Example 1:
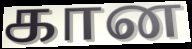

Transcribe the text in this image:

கான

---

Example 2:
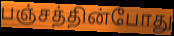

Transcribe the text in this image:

பஞ்சத்தின்போது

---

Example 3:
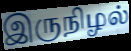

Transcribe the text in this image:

இருநிழல்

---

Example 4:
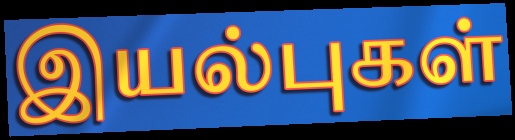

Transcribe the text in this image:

இயல்புகள்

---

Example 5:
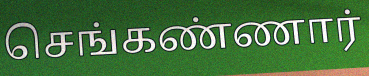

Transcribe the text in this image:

செங்கண்ணார்